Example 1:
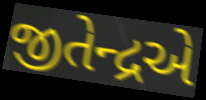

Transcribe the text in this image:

જીતેન્દ્રએ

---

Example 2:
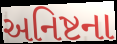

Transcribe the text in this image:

અનિષ્ટના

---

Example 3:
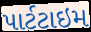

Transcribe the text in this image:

પાર્ટટાઇમ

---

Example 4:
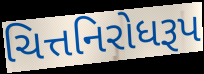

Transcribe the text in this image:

ચિત્તનિરોધરૂપ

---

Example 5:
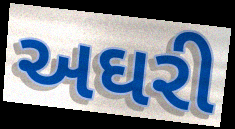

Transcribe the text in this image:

અઘરી